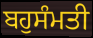
ਬਹੁਸੰਮਤੀ